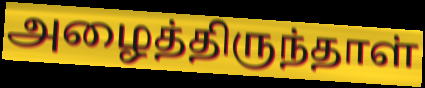
அழைத்திருந்தாள்